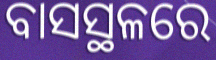
ବାସସ୍ଥଳରେ